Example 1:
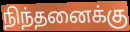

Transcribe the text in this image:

நிந்தனைக்கு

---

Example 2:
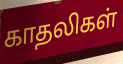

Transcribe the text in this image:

காதலிகள்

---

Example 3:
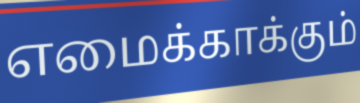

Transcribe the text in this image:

எமைக்காக்கும்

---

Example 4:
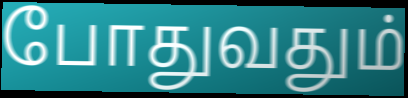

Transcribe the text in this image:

போதுவதும்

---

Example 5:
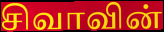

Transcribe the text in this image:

சிவாவின்